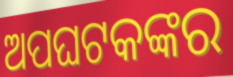
ଅପଘଟକଙ୍କର